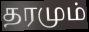
தரமும்